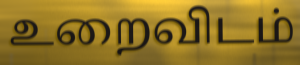
உறைவிடம்